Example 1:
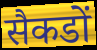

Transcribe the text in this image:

सैकडों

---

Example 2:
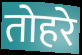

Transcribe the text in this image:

तोहरे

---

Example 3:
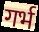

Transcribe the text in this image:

गर्भ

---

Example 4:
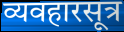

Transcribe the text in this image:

व्यवहारसूत्र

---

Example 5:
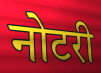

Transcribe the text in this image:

नोटरी